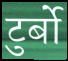
टुर्बो